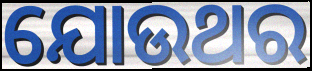
ଯୋଉଥର